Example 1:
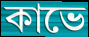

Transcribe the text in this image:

কাভে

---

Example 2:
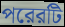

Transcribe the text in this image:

পরেরটি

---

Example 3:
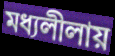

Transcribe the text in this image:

মধ্যলীলায়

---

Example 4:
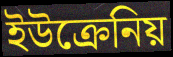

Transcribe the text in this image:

ইউক্রেনিয়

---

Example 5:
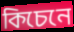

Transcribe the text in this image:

কিচেনে